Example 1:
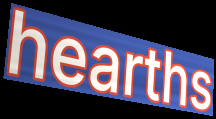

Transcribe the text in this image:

hearths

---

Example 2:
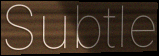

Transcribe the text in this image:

Subtle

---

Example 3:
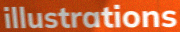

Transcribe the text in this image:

illustrations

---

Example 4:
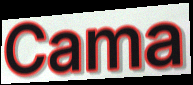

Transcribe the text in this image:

Cama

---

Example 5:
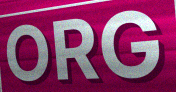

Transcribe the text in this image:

ORG